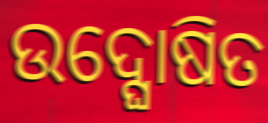
ଉଦ୍ଘୋଷିତ